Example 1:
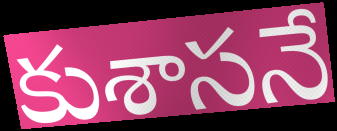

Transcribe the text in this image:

కుశాసనే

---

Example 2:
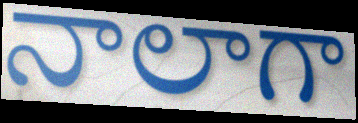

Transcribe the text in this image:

నాలాగా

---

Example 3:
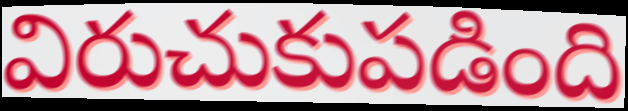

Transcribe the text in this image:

విరుచుకుపడింది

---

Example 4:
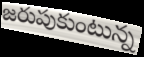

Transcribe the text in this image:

జరుపుకుంటున్న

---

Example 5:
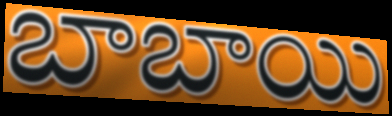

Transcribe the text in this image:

బాబాయి